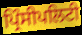
ਪ੍ਰਿੰਸੀਪਲਿਟੀ